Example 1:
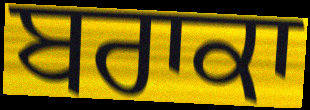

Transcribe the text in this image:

ਬਰਾਕਾ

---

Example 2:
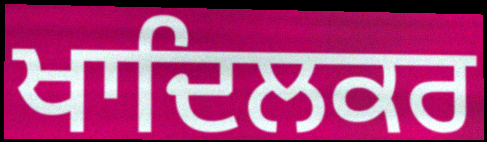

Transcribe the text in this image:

ਖਾਦਿਲਕਰ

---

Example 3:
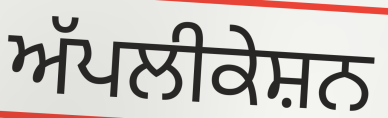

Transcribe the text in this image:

ਅੱਪਲੀਕੇਸ਼ਨ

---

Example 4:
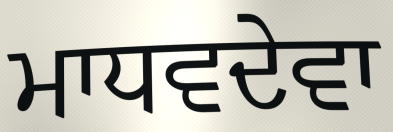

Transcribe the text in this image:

ਮਾਧਵਦੇਵਾ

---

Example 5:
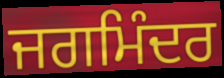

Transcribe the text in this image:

ਜਗਮਿੰਦਰ